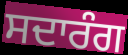
ਸਦਾਰੰਗ